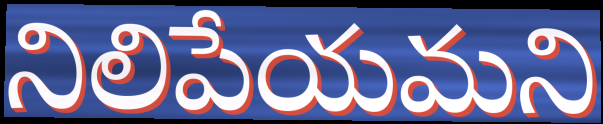
నిలిపేయమని